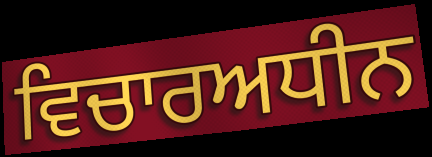
ਵਿਚਾਰਅਧੀਨ